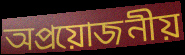
অপ্ৰয়োজনীয়